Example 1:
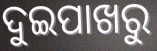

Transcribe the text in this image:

ଦୁଇପାଖରୁ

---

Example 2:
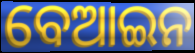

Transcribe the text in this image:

ବେଆଇନ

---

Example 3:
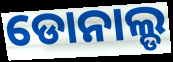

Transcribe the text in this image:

ଡୋନାଲ୍ଡ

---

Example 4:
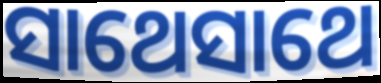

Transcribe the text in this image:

ସାଥେସାଥେ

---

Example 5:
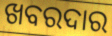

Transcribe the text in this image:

ଖବରଦାର